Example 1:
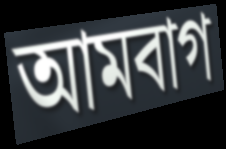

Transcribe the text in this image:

আমবাগ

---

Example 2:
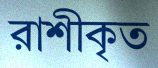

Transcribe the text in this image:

রাশীকৃত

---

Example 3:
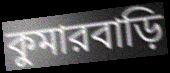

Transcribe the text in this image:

কুমারবাড়ি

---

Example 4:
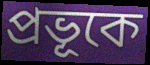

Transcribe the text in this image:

প্রভূকে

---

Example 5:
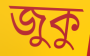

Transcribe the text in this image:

জুকু